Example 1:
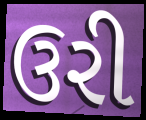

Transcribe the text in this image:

ઉરી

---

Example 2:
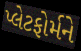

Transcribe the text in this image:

પ્લેટફોર્મને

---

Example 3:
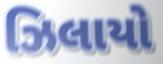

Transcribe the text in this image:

ઝિલાયો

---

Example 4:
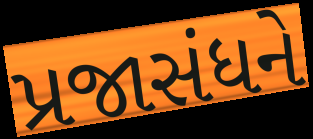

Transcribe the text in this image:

પ્રજાસંધને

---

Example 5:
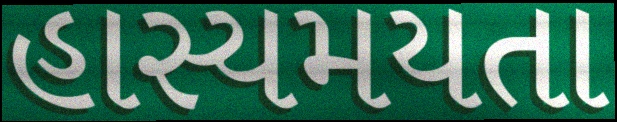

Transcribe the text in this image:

હાસ્યમયતા